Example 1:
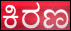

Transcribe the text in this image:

ಕಿರಣ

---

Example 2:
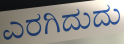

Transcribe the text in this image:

ಎರಗಿದುದು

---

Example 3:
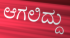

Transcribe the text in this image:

ಆಗಲಿದ್ದು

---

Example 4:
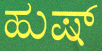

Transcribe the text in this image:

ಹುಷ್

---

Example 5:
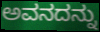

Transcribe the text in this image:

ಅವನದನ್ನು